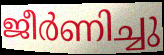
ജീർണിച്ചു